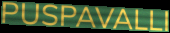
PUSPAVALLI